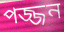
পজ্জন